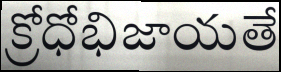
క్రోధోభిజాయతే